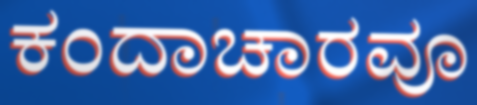
ಕಂದಾಚಾರವೂ